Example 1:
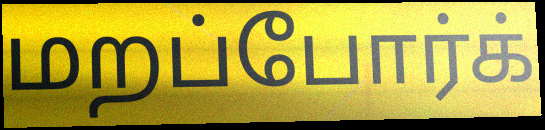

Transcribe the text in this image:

மறப்போர்க்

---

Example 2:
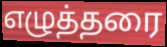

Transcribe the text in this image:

எழுத்தரை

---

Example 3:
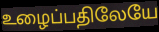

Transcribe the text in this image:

உழைப்பதிலேயே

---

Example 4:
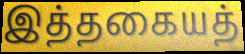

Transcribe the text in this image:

இத்தகையத்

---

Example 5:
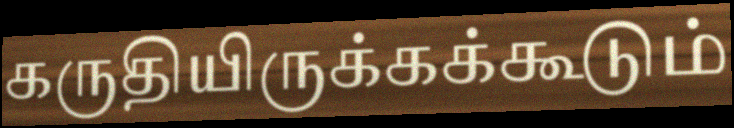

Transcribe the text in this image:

கருதியிருக்கக்கூடும்